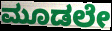
ಮೂಡಲೇ